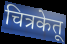
चित्रकेतू